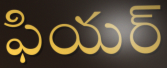
ఫియర్